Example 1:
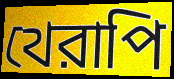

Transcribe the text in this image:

থেরাপি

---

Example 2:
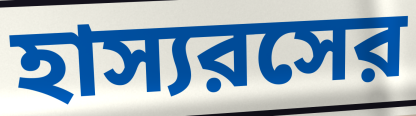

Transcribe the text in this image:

হাস্যরসের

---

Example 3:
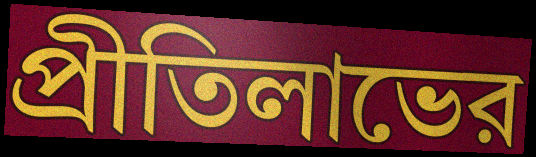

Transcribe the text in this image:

প্রীতিলাভের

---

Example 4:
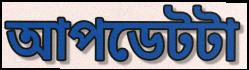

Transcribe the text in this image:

আপডেটটা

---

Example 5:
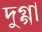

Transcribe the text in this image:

দুগ্গা